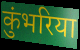
कुंभरिया